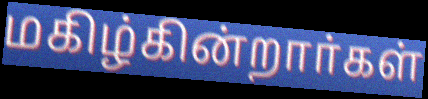
மகிழ்கின்றார்கள்